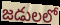
జడులలో